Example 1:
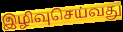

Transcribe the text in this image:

இழிவுசெய்வது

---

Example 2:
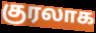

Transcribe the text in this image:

குரலாக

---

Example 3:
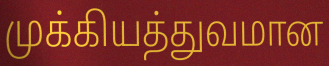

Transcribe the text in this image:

முக்கியத்துவமான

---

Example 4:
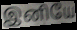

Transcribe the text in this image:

இனியே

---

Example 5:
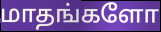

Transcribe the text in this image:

மாதங்களோ